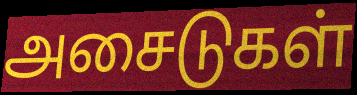
அசைடுகள்